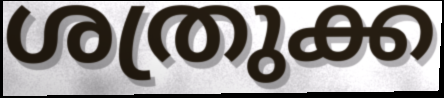
ശത്രുക്ക